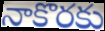
నాకొరకు